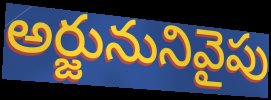
అర్జునునివైపు